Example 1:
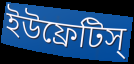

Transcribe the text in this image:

ইউফ্রেটিস্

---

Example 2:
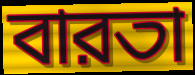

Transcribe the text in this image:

বারতা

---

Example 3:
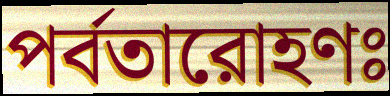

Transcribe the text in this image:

পর্বতারোহণঃ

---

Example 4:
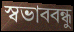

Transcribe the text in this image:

স্বভাববন্ধু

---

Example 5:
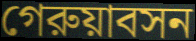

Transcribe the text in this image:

গেরুয়াবসন